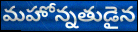
మహోన్నతుడైన